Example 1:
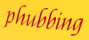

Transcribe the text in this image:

phubbing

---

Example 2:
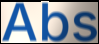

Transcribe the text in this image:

Abs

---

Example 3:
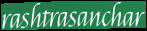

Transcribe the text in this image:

rashtrasanchar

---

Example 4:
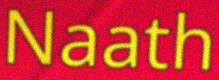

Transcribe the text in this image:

Naath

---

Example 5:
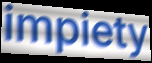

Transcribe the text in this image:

impiety